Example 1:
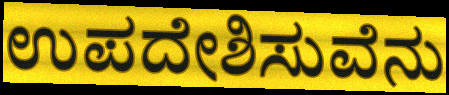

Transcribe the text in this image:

ಉಪದೇಶಿಸುವೆನು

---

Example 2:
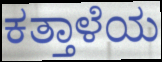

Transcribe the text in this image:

ಕತ್ತಾಳೆಯ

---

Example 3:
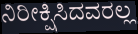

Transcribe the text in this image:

ನಿರೀಕ್ಷಿಸಿದವರಲ್ಲ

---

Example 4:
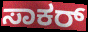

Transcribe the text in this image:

ಸಾಕರ್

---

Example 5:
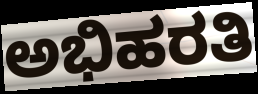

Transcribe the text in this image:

ಅಭಿಹರತಿ